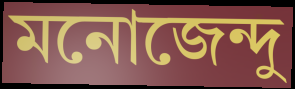
মনোজেন্দু